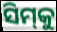
ସିମ୍‌କୁ